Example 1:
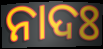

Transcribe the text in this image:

ନାଦଃ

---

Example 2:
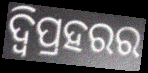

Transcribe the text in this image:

ଦ୍ୱିପ୍ରହରର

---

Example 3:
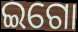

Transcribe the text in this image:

ଇଗୋ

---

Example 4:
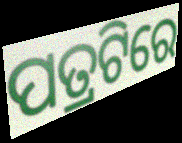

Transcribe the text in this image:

ପତ୍ରଟିରେ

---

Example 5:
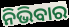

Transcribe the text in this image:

ନିଭିବାର